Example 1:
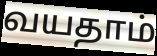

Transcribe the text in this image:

வயதாம்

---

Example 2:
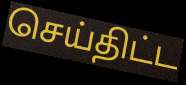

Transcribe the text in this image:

செய்திட்ட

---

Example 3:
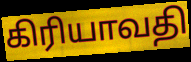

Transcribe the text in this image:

கிரியாவதி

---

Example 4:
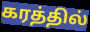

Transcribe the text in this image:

கரத்தில்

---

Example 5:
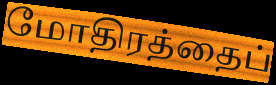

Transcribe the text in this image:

மோதிரத்தைப்